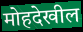
मोहदेखील